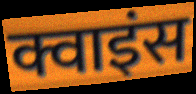
क्वाइंस